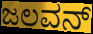
ಜಲವನ್